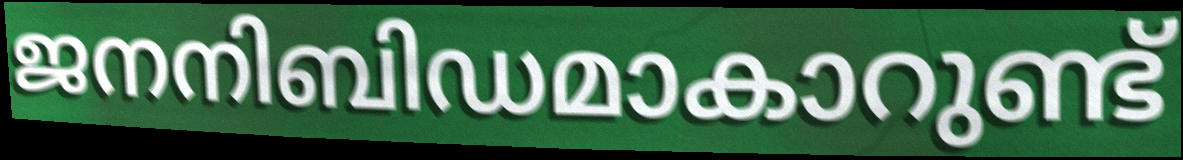
ജനനിബിഡമാകാറുണ്ട്